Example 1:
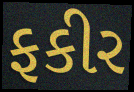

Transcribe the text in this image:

ફકીર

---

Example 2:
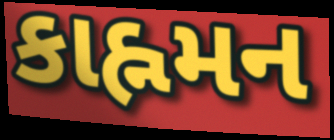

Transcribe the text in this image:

કાહ્નમન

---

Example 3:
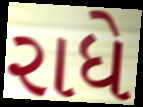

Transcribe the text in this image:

રાધે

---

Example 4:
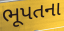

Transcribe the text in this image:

ભૂપતના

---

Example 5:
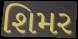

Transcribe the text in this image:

શિમર